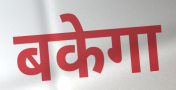
बकेगा